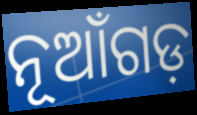
ନୂଆଁଗଡ଼